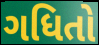
ગધિતો